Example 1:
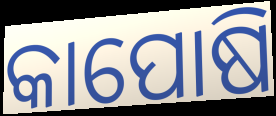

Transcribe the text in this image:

କାପୋଷି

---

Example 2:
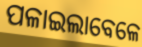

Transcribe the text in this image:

ପଳାଇଲାବେଳେ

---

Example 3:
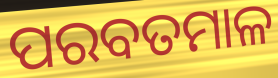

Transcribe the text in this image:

ପରବତମାଳ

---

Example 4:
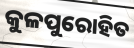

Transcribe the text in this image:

କୁଳପୁରୋହିତ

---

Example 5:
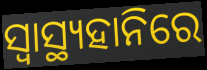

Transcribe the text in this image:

ସ୍ୱାସ୍ଥ୍ୟହାନିରେ